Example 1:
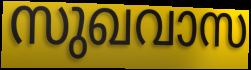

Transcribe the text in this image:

സുഖവാസ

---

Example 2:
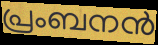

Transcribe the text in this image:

പ്രംബനൻ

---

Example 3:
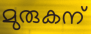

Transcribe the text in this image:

മുരുകന്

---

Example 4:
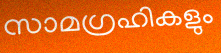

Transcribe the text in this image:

സാമഗ്രഹികളും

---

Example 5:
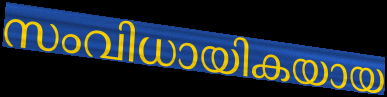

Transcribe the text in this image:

സംവിധായികയായ